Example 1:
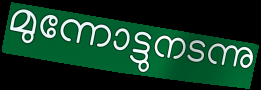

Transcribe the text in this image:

മുന്നോട്ടുനടന്നു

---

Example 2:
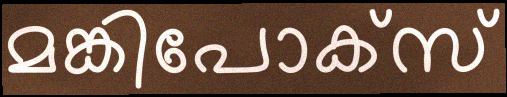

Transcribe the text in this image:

മങ്കിപോക്സ്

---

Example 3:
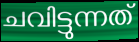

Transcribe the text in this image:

ചവിട്ടുന്നത്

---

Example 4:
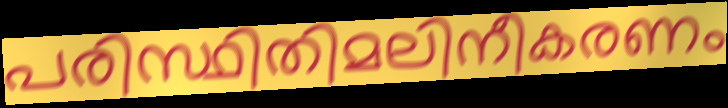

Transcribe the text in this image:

പരിസ്ഥിതിമലിനീകരണം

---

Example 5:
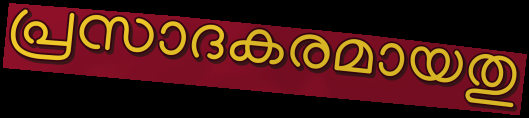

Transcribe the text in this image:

പ്രസാദകരമായതു